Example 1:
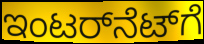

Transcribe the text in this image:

ಇಂಟರ್‌ನೆಟ್‌ಗೆ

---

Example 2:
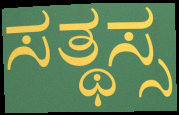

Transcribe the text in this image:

ಸತ್ಥಸ್ಸ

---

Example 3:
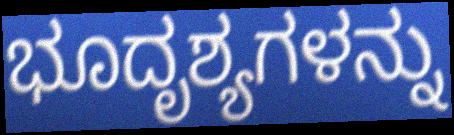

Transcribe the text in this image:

ಭೂದೃಶ್ಯಗಳನ್ನು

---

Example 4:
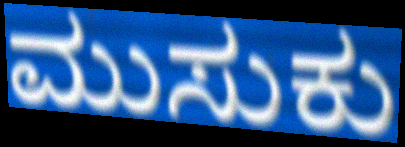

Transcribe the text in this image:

ಮುಸುಕು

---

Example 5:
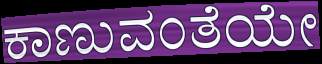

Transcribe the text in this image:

ಕಾಣುವಂತೆಯೇ